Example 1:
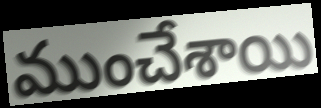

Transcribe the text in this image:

ముంచేశాయి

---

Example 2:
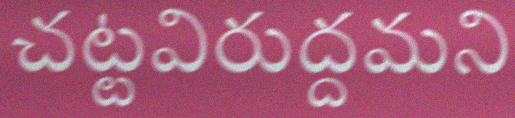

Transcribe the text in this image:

చట్టవిరుద్దమని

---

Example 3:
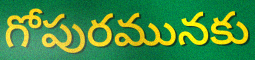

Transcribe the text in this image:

గోపురమునకు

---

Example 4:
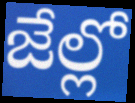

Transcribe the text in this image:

జేల్లో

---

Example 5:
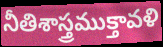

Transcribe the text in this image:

నీతిశాస్త్రముక్తావళి